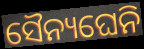
ସୈନ୍ୟଘେନି